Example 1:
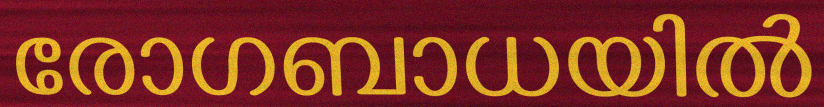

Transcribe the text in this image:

രോഗബാധയിൽ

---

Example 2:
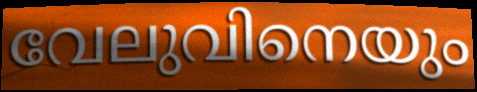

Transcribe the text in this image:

വേലുവിനെയും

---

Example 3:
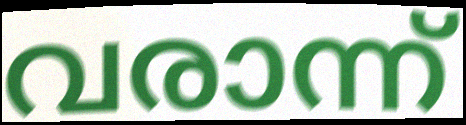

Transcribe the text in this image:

വരാന്ന്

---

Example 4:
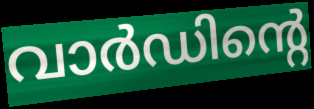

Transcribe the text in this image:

വാർഡിന്റെ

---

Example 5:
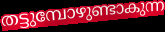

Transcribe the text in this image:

തട്ടുമ്പോഴുണ്ടാകുന്ന